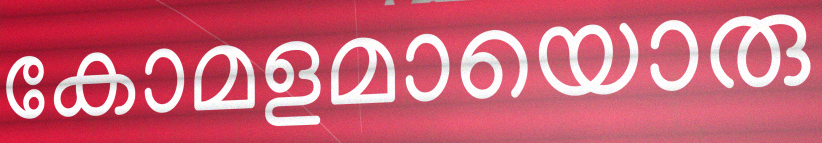
കോമളമായൊരു